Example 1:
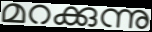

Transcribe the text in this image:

മറക്കുന്നു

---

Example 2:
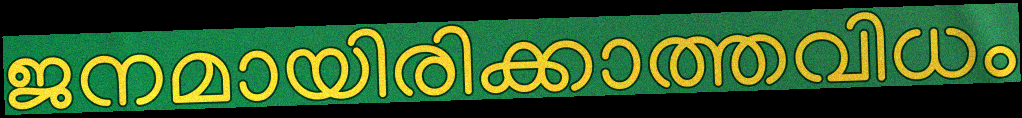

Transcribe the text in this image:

ജനമായിരിക്കാത്തവിധം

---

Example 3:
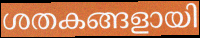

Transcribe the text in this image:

ശതകങ്ങളായി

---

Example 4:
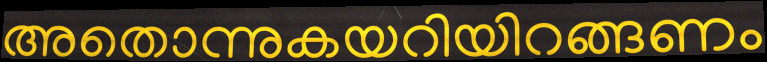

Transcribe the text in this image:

അതൊന്നുകയറിയിറങ്ങണം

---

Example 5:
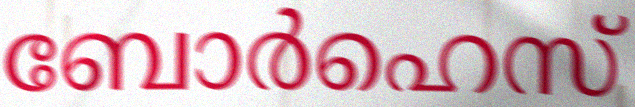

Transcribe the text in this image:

ബോർഹെസ്